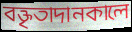
বক্তৃতাদানকালে